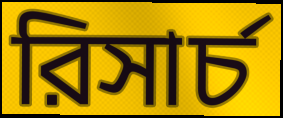
রিসার্চ